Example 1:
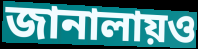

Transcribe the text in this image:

জানালায়ও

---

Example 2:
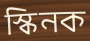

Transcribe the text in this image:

স্কিনক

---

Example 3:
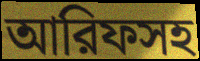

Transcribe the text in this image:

আরিফসহ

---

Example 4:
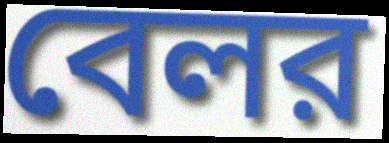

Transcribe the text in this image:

বেলর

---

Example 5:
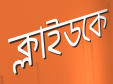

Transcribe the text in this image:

ক্লাইডকে